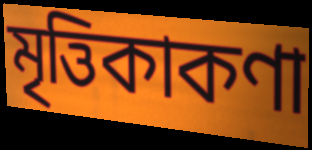
মৃত্তিকাকণা